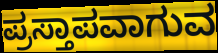
ಪ್ರಸ್ತಾಪವಾಗುವ